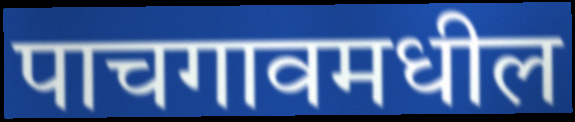
पाचगावमधील